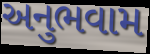
અનુભવામ